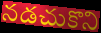
నడచుకొని